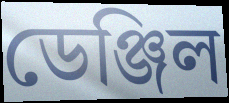
ডেঞ্জিল